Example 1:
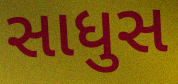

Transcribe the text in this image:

સાધુસ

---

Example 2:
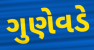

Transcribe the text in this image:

ગુણેવડે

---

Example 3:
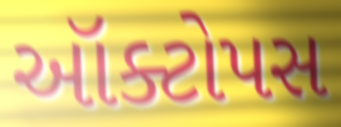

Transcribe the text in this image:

ઑક્ટોપસ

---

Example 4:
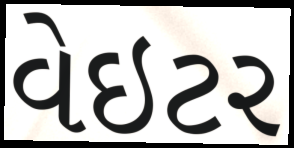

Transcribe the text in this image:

વેઇટર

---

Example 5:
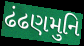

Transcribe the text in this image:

ઢંઢણમુનિ